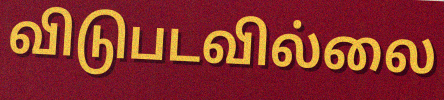
விடுபடவில்லை